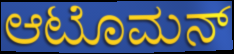
ಆಟೊಮನ್